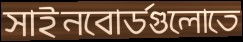
সাইনবোর্ডগুলোতে